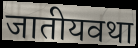
जातीयवथा